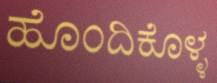
ಹೊಂದಿಕೊಳ್ಳ